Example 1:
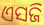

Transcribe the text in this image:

ଏସଜି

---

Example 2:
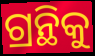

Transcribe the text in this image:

ଗ୍ରନ୍ଥିକୁ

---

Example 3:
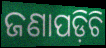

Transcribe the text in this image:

ଜଣାପଡ଼ିଚି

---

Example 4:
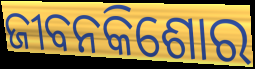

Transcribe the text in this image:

ଜୀବନକିଶୋର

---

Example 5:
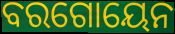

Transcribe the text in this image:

ବରଗୋୟେନ